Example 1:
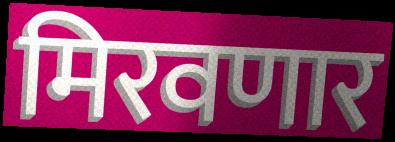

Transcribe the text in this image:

मिरवणार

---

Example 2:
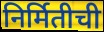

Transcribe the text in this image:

निर्मितीची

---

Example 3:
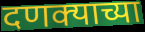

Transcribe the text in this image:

दणक्याच्या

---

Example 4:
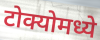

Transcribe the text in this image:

टोक्योमध्ये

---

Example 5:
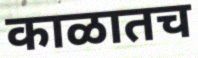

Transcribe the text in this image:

काळातच